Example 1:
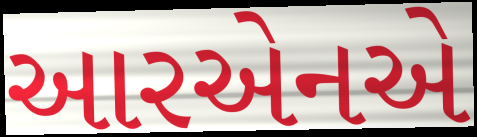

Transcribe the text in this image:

આરએનએ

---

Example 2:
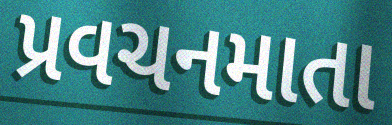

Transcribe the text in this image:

પ્રવચનમાતા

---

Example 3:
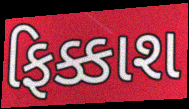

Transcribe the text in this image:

ફિક્કાશ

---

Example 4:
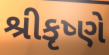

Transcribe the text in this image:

શ્રીકૃષ્ણે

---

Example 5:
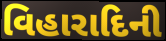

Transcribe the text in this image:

વિહારાદિની